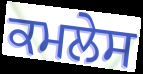
ਕਮਲੇਸ